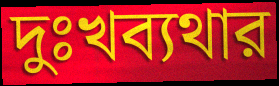
দুঃখব্যথার